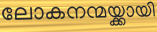
ലോകനന്മയ്ക്കായി